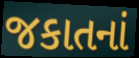
જકાતનાં